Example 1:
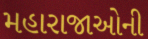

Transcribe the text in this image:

મહારાજાઓની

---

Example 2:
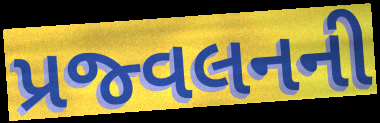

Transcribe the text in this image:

પ્રજ્વલનની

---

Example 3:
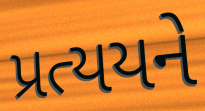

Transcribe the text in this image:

પ્રત્યયને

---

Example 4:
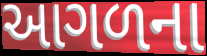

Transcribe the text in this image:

આગળના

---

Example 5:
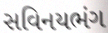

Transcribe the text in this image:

સવિનયભંગ